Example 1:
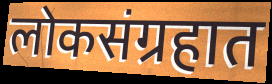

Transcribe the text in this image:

लोकसंग्रहात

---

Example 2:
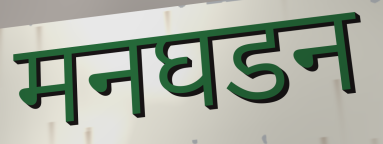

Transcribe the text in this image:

मनघडन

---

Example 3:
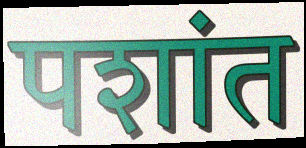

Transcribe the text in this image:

पशांत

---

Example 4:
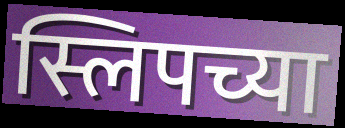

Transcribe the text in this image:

स्लिपच्या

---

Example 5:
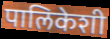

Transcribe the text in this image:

पालिकेशी